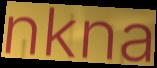
nkna